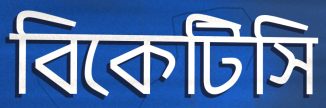
বিকেটিসি